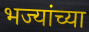
भज्यांच्या